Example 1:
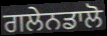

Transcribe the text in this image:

ਗਲੇਨਡਾਲੋ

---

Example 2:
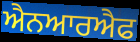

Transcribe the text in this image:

ਐਨਆਰਐਫ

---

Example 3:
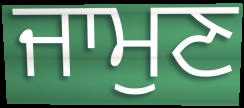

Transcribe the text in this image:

ਜਾਮੁਣ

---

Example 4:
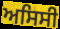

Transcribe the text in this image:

ਅਸਿਸੀ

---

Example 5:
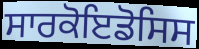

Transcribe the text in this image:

ਸਾਰਕੋਇਡੋਸਿਸ